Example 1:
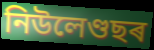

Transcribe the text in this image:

নিউলেণ্ডছৰ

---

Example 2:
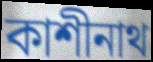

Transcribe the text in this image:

কাশীনাথ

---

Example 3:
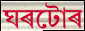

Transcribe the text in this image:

ঘৰটোৰ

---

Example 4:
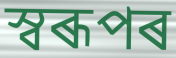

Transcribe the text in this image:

স্বৰূপৰ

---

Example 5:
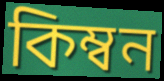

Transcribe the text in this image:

কিম্বন